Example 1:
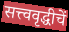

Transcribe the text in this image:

सत्त्ववृद्धीचें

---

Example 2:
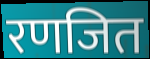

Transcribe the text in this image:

रणजित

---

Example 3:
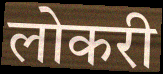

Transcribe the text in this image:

लोकरी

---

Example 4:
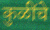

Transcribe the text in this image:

कुळींचे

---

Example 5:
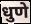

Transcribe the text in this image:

धुणे